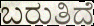
ಬರುತಿದೆ